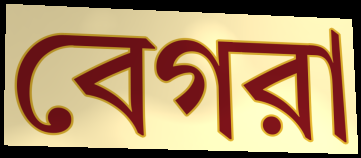
বেগরা